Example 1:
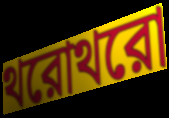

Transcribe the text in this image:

থরোথরো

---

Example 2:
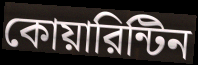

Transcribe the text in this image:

কোয়ারিন্টিন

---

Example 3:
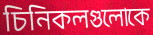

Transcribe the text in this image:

চিনিকলগুলোকে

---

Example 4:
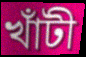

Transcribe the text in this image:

খাঁটী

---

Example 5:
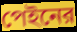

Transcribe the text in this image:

পেইনের